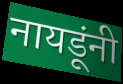
नायडूंनी